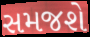
સમજશે